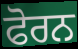
ਫੋਰਨ